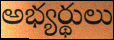
అభ్యర్థులు